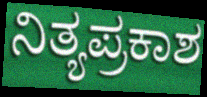
ನಿತ್ಯಪ್ರಕಾಶ